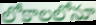
లోకాలలోనూ